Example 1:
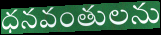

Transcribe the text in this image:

ధనవంతులను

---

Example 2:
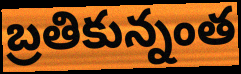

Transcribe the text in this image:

బ్రతికున్నంత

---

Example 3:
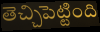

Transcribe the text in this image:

తెచ్చిపెట్టింది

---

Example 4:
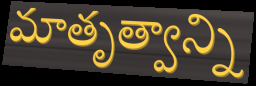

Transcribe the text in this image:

మాతృత్వాన్ని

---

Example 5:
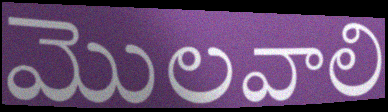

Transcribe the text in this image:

మొలవాలి